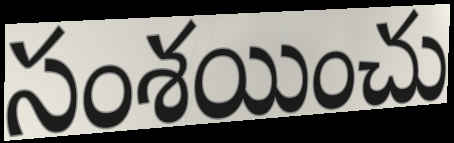
సంశయించు